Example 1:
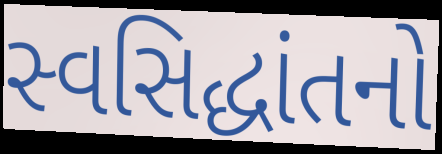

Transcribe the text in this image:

સ્વસિદ્ધાંતનો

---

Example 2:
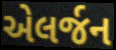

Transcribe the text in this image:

એલર્જન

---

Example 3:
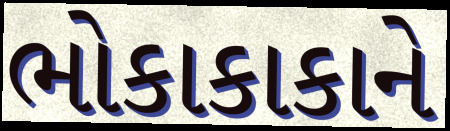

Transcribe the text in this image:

ભોકાકાકાને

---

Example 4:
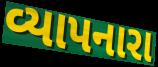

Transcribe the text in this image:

વ્યાપનારા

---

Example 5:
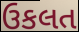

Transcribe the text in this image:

ઉકલત